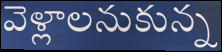
వెళ్లాలనుకున్న